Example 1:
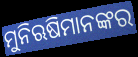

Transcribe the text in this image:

ମୁନିଋଷିମାନଙ୍କର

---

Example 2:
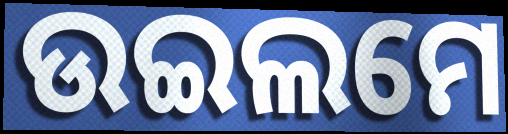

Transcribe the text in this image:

ଉଇଲମେ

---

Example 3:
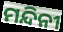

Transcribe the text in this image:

ମନ୍ଦିନୀ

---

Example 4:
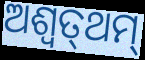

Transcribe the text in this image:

ଅଶ୍ୱତ୍‌ଥମ୍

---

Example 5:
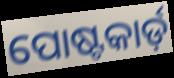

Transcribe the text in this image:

ପୋଷ୍ଟକାର୍ଡ଼